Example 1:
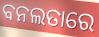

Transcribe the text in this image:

ବନଲତାରେ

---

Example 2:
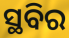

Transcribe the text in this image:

ସ୍ଥବିର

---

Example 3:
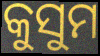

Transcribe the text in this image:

କୁସୁମ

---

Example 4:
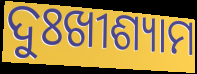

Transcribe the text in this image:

ଦୁଃଖୀଶ୍ୟାମ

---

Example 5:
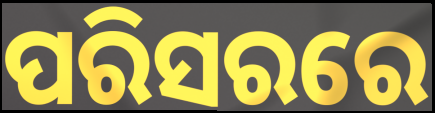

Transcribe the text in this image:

ପରିସରରେ